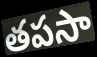
తపసా